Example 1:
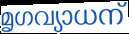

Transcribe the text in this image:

മൃഗവ്യാധന്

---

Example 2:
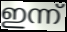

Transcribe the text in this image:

ഇന്ന്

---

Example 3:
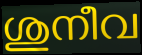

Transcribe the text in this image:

ശുനീവ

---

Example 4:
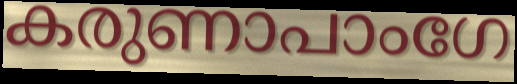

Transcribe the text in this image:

കരുണാപാംഗേ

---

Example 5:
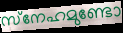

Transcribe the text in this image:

സ്‌നേഹമുണ്ടോ